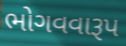
ભોગવવારૂપ